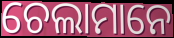
ଚେଲାମାନେ